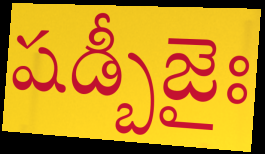
షడ్బీజైః